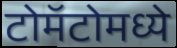
टोमॅटोमध्ये